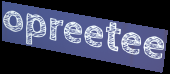
opreetee